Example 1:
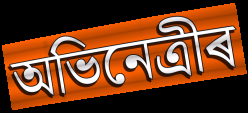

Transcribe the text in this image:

অভিনেত্ৰীৰ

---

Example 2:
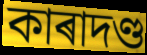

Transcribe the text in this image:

কাৰাদণ্ড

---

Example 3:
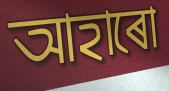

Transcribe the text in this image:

আহাৰো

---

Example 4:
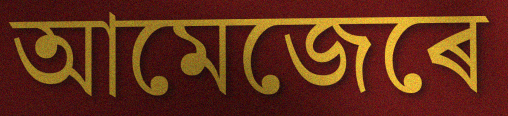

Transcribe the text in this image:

আমেজেৰে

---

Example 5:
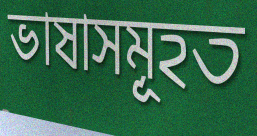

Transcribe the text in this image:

ভাষাসমূহত